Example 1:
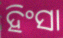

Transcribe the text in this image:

ହିଂସା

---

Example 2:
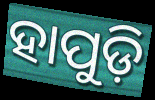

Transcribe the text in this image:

ହାପୁଡ଼ି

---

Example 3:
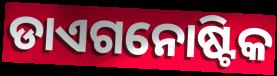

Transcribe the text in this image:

ଡାଏଗନୋଷ୍ଟିକ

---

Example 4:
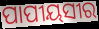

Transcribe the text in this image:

ପାପୀୟସୀର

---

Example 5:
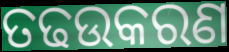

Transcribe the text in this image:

ତଢଉକରଣ